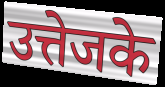
उत्तेजके